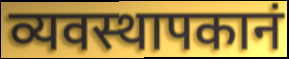
व्यवस्थापकानं